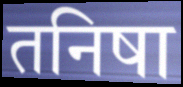
तनिषा